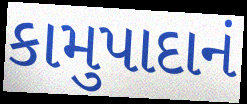
કામુપાદાનં